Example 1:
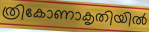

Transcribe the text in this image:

ത്രികോണാകൃതിയിൽ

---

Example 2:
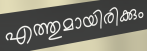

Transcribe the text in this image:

എത്തുമായിരിക്കും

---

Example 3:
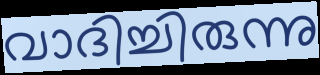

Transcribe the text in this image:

വാദിച്ചിരുന്നു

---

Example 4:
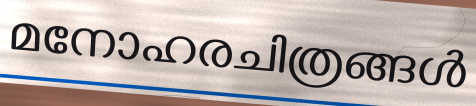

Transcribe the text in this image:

മനോഹരചിത്രങ്ങൾ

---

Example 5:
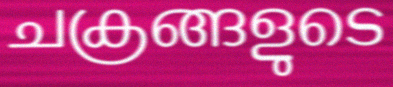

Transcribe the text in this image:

ചക്രങ്ങളുടെ